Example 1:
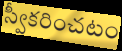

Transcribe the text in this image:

స్వీకరించటం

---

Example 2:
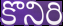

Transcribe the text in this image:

కొనిరి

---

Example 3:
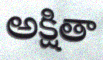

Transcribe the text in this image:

అక్షితా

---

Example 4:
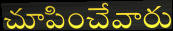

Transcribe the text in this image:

చూపించేవారు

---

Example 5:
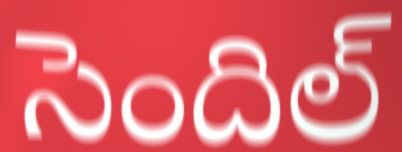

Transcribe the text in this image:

సెందిల్